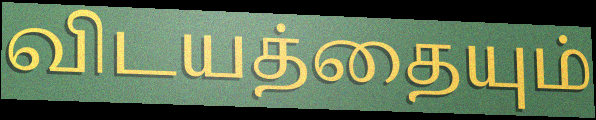
விடயத்தையும்